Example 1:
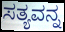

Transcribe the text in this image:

ಸತ್ಯವನ್ನ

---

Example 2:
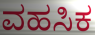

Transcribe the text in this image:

ವಹಸಿಕ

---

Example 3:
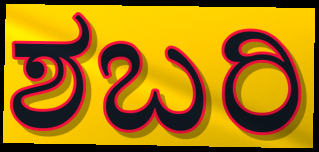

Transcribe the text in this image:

ಶಬರಿ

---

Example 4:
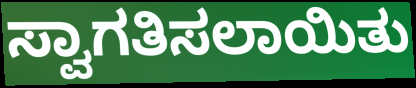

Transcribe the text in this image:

ಸ್ವಾಗತಿಸಲಾಯಿತು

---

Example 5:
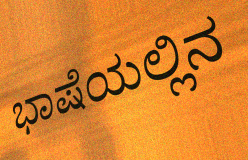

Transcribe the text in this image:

ಭಾಷೆಯಲ್ಲಿನ